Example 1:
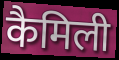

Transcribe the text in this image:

कैमिली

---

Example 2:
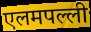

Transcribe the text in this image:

एलमपल्ली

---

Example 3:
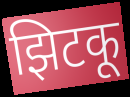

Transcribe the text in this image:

झिटकू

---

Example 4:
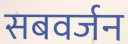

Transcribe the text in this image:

सबवर्जन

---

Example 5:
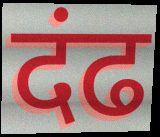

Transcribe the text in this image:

दंढ